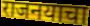
राजनयाचा